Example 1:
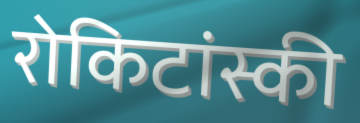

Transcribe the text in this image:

रोकिटांस्की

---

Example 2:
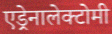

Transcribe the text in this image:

एड्रेनालेक्टोमी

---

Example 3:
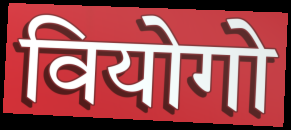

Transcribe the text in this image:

वियोगो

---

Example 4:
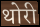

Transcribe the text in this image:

थोरी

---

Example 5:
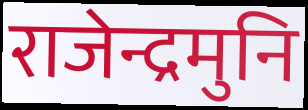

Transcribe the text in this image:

राजेन्द्रमुनि